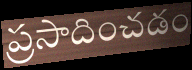
ప్రసాదించడం